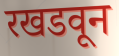
रखडवून